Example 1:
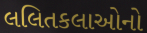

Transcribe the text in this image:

લલિતકલાઓનો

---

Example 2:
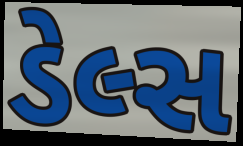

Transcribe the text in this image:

ડેલ્સ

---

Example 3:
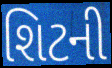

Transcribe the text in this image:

શિટની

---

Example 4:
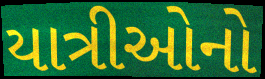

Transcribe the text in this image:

યાત્રીઓનો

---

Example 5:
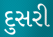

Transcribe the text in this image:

દુસરી